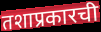
तशाप्रकारची